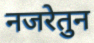
नजरेतुन